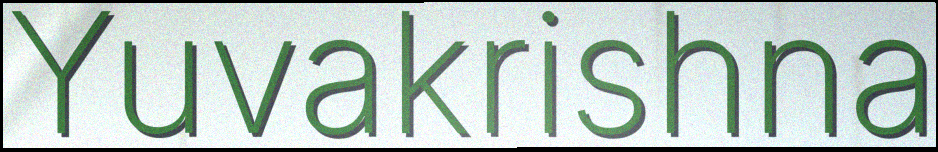
Yuvakrishna